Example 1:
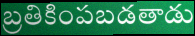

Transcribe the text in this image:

బ్రతికింపబడతాడు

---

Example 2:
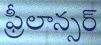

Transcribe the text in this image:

ఫ్రీలాన్సర్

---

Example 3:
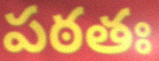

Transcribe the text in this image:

పఠతః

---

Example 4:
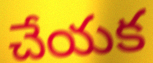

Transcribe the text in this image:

చేయక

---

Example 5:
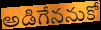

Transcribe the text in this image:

అడిగేననుకో